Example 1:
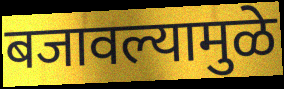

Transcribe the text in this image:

बजावल्यामुळे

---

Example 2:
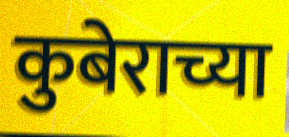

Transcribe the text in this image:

कुबेराच्या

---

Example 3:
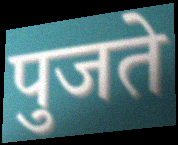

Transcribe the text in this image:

पुजते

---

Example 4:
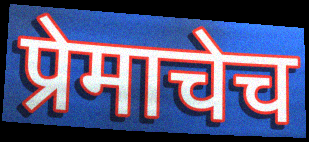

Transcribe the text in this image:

प्रेमाचेच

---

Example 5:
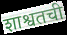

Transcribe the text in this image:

शाश्वतची